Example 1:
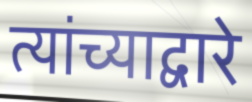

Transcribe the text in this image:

त्यांच्याद्वारे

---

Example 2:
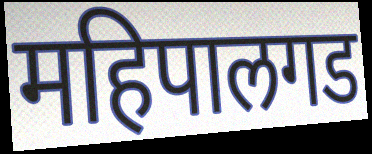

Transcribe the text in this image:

महिपालगड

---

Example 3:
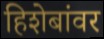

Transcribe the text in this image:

हिशेबांवर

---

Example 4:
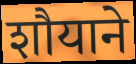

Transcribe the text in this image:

शौयाने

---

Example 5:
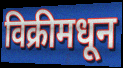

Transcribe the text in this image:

विक्रीमधून